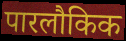
पारलौकिक